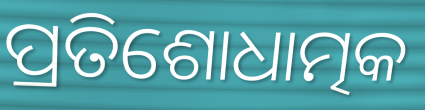
ପ୍ରତିଶୋଧାତ୍ମକ